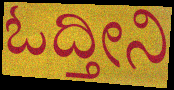
ಓದ್ತೀನಿ